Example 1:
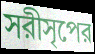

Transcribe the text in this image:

সরীসৃপের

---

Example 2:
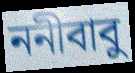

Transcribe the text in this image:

ননীবাবু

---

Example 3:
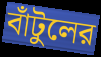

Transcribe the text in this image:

বাঁটুলের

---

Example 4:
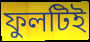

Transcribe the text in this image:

ফুলটিই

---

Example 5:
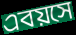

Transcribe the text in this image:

এবয়সে